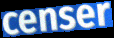
censer